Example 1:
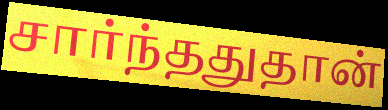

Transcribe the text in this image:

சார்ந்ததுதான்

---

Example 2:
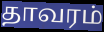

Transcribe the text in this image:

தாவரம்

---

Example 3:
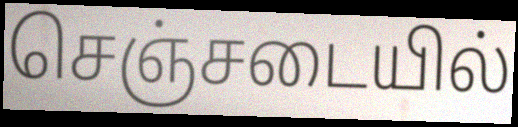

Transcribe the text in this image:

செஞ்சடையில்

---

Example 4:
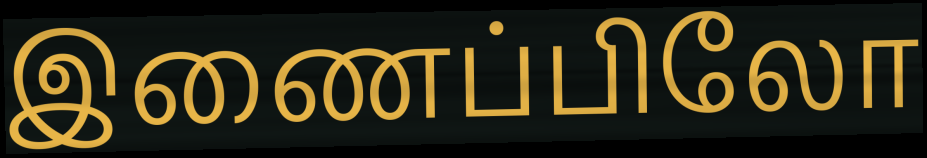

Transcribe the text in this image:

இணைப்பிலோ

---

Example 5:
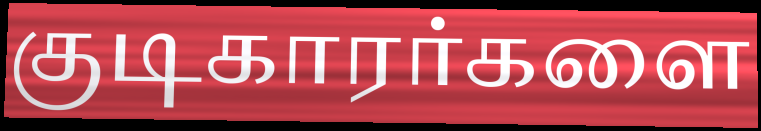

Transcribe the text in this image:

குடிகாரர்களை